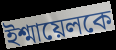
ইশ্মায়েলকে